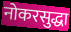
नोकरसुद्धा